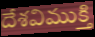
దేశవిముక్తి